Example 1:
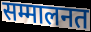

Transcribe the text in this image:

सम्मालनत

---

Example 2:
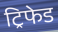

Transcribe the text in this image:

ट्रिफेड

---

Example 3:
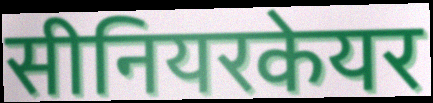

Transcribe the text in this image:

सीनियरकेयर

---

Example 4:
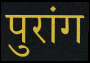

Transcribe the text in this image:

पुरांग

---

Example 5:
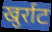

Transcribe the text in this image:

खुर्राट